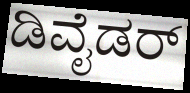
ಡಿವೈಡರ್